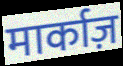
मार्काज़